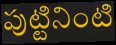
పుట్టినింటి